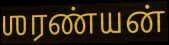
ஶரண்யன்